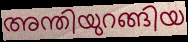
അന്തിയുറങ്ങിയ